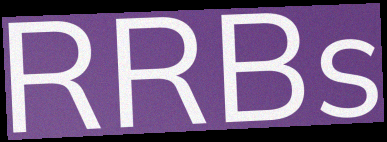
RRBs